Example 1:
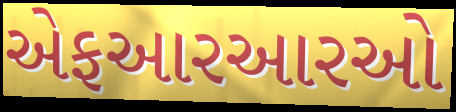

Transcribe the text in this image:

એફઆરઆરઓ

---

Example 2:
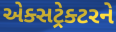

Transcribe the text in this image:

એક્સટ્રેક્ટરને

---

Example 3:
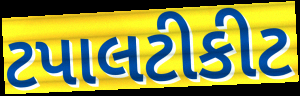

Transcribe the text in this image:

ટપાલટીકીટ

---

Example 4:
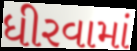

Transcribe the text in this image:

ધીરવામાં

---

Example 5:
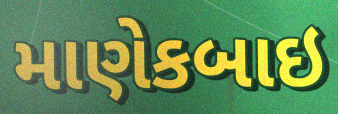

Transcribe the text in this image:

માણેકબાઇ